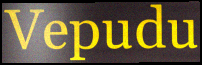
Vepudu